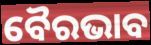
ବୈରଭାବ